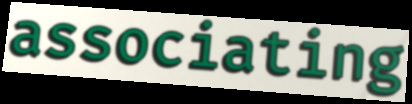
associating